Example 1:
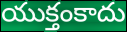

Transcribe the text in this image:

యుక్తంకాదు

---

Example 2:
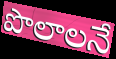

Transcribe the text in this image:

పొలాలనే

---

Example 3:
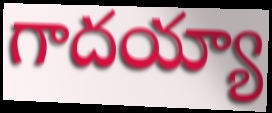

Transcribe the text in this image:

గాదయ్యా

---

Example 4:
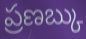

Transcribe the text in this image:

ప్రణబ్కు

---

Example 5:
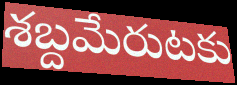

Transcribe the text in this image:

శబ్దమేరుటకు